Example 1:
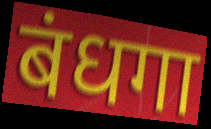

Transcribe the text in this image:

बंधगा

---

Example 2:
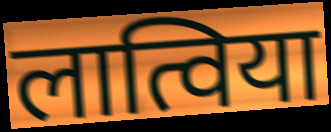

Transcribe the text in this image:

लात्विया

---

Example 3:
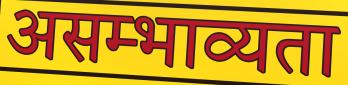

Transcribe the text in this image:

असम्भाव्यता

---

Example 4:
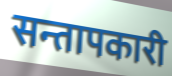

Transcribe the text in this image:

सन्तापकारी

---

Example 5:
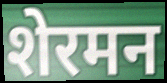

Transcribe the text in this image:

शेरमन